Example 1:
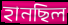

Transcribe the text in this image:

হানছিল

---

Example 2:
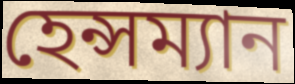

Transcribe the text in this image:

হেন্সম্যান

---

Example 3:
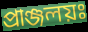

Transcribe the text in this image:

প্রাঞ্জলয়ঃ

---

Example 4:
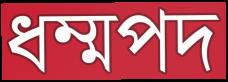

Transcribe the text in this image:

ধম্মপদ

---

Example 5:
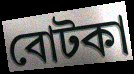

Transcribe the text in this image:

বোটকা